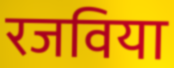
रजविया